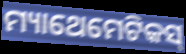
ମ୍ୟାଥେମେଟିକସ୍